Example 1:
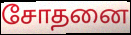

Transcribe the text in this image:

சோதனை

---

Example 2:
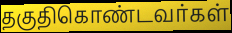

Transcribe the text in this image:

தகுதிகொண்டவர்கள்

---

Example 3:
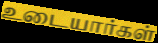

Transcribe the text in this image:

உடையார்கள்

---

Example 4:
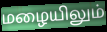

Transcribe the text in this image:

மழையிலும்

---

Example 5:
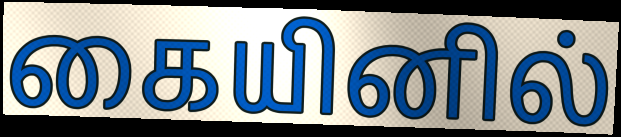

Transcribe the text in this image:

கையினில்